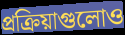
প্রক্রিয়াগুলোও